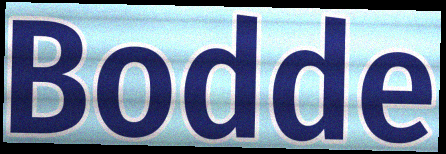
Bodde